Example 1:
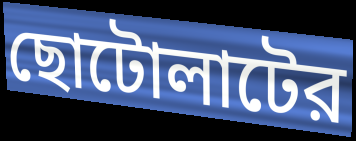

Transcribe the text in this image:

ছোটোলাটের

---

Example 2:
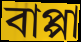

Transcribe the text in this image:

বাপ্পা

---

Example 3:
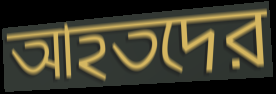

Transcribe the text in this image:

আহতদের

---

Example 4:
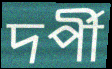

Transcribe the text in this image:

দর্পী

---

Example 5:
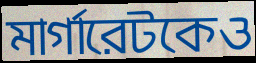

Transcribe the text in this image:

মার্গারেটকেও